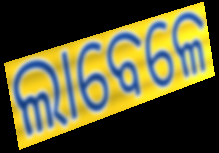
ଲାବେଳେ